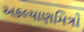
અકલ્યાણમિત્રો